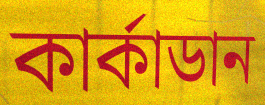
কাৰ্কাডান